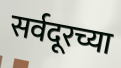
सर्वदूरच्या